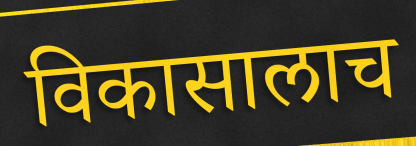
विकासालाच